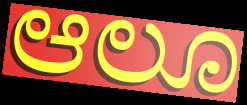
ಆಲೂ